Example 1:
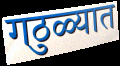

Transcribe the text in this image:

गठुळ्यात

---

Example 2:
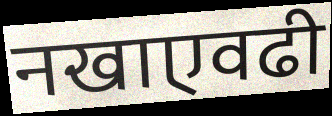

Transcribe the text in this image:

नखाएवढी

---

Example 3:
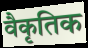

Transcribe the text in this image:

वैकृतिक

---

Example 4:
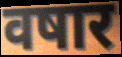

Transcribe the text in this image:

वषार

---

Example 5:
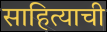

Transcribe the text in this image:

साहित्याची